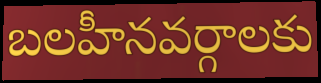
బలహీనవర్గాలకు